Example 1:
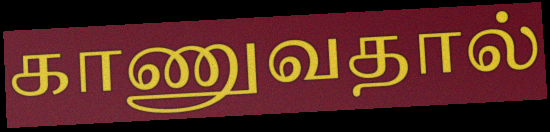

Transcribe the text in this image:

காணுவதால்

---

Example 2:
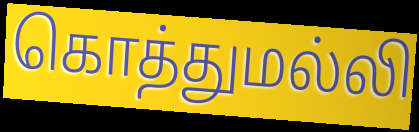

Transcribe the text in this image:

கொத்துமல்லி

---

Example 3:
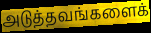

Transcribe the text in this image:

அடுத்தவங்களைக்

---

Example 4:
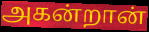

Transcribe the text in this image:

அகன்றான்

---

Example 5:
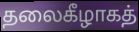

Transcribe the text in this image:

தலைகீழாகத்